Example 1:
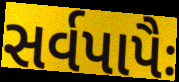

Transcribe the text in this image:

સર્વપાપૈઃ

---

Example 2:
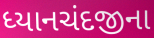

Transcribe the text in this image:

ધ્યાનચંદજીના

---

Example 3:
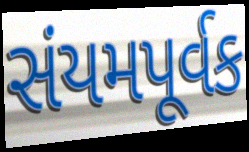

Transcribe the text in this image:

સંયમપૂર્વક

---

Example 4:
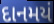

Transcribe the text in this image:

દાનમયં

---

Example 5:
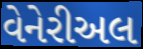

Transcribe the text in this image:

વેનેરીઅલ